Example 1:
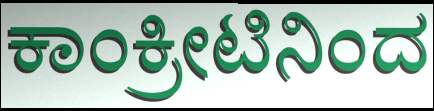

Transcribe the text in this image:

ಕಾಂಕ್ರೀಟಿನಿಂದ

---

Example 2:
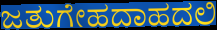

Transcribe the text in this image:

ಜತುಗೇಹದಾಹದಲಿ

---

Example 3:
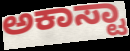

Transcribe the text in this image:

ಅಕಾಸ್ಟಾ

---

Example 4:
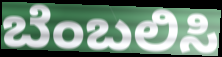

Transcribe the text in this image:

ಬೆಂಬಲಿಸಿ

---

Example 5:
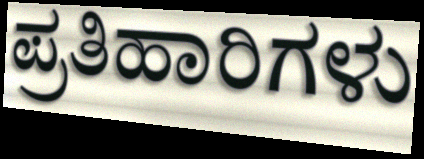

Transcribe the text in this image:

ಪ್ರತಿಹಾರಿಗಳು